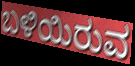
ಬಳಿಯಿರುವ